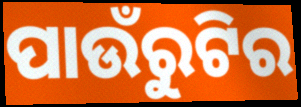
ପାଉଁରୁଟିର